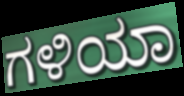
ಗಳಿಯಾ